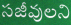
సజీవులని